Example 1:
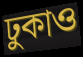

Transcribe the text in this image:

ঢুকাও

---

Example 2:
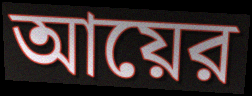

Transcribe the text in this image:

আয়ের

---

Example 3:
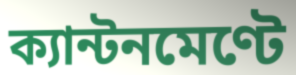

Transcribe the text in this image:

ক্যান্টনমেণ্টে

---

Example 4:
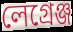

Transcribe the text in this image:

লেগ্রেঞ্জ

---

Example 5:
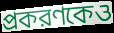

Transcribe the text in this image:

প্রকরণকেও